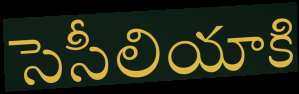
సెసీలియాకి